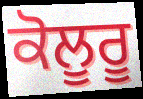
ਕੋਲੂਰੂ